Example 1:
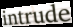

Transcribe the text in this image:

intrude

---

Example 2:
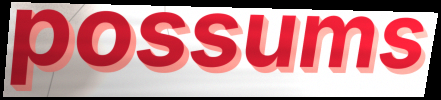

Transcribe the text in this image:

possums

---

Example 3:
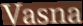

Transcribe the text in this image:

Vasna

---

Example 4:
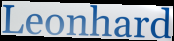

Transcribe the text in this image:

Leonhard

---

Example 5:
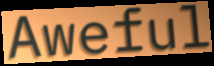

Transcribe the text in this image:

Aweful